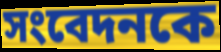
সংবেদনকে